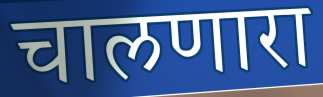
चालणारा